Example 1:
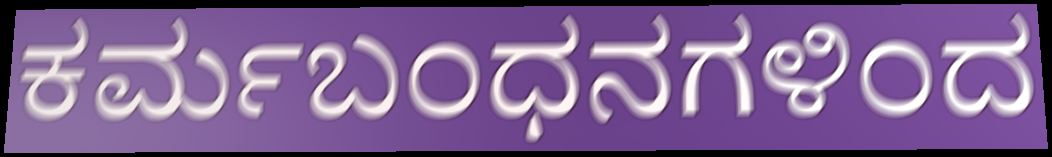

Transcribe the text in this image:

ಕರ್ಮಬಂಧನಗಳಿಂದ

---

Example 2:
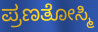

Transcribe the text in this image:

ಪ್ರಣತೋಸ್ಮಿ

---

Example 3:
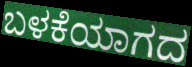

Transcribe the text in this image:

ಬಳಕೆಯಾಗದ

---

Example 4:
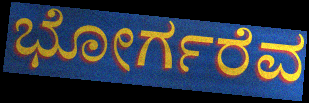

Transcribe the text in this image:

ಭೋರ್ಗರೆವ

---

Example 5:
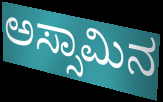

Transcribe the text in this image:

ಅಸ್ಸಾಮಿನ